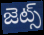
జెట్స్